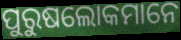
ପୁରୁଷଲୋକମାନେ